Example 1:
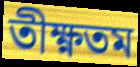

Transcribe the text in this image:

তীক্ষ্ণতম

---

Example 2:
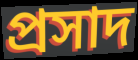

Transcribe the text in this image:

প্রসাদ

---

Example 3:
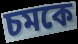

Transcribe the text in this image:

চমকে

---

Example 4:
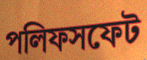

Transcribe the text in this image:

পলিফসফেট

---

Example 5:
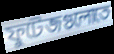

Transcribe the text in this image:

ফুটেজগুলোতে